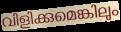
വിളിക്കുമെങ്കിലും